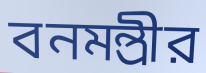
বনমন্ত্রীর